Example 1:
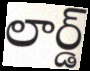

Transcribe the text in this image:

లార్డ్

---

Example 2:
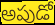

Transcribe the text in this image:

అపుడో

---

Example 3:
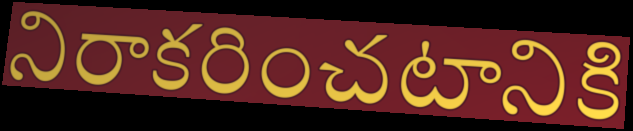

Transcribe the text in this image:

నిరాకరించటానికి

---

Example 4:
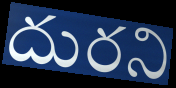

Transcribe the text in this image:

దురని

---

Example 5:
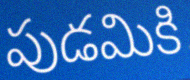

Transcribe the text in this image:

పుడమికి